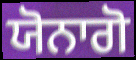
ਯੋਨਾਗੋ